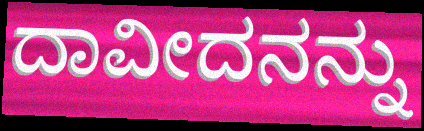
ದಾವೀದನನ್ನು